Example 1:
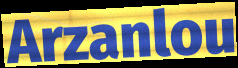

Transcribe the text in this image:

Arzanlou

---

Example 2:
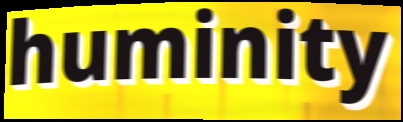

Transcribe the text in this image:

huminity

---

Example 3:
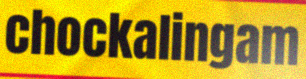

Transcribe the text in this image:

chockalingam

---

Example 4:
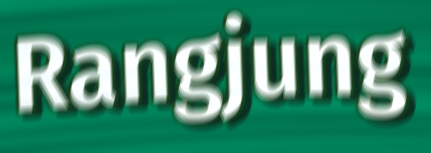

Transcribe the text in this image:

Rangjung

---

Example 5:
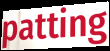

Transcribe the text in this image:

patting